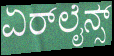
ಏರ್‌ಲೈನ್ಸ್